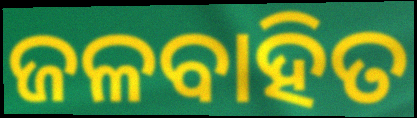
ଜଳବାହିତ